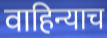
वाहिन्याच